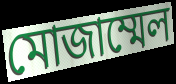
মোজাম্মেল